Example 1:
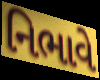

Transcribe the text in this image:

નિભાવે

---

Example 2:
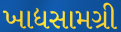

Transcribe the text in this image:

ખાદ્યસામગ્રી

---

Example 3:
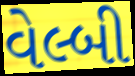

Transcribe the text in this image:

વેલ્બી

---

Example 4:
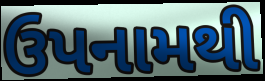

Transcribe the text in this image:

ઉપનામથી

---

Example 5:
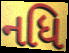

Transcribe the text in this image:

નધિ